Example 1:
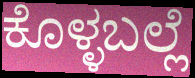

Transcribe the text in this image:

ಕೊಳ್ಳಬಲ್ಲೆ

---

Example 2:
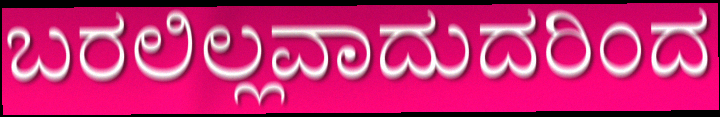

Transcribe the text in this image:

ಬರಲಿಲ್ಲವಾದುದರಿಂದ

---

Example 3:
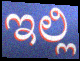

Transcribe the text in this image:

ಇಲ್ಲಿ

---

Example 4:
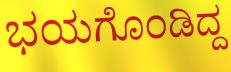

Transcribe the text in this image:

ಭಯಗೊಂಡಿದ್ದ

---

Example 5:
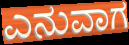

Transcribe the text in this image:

ಎನುವಾಗ